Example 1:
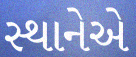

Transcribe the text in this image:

સ્થાનેએ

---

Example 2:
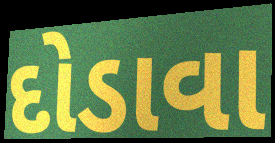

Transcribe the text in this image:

દોડાવા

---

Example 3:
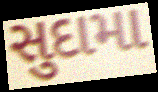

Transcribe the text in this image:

સુદામા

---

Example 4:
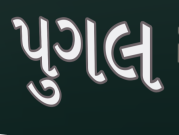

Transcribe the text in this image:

પુગલ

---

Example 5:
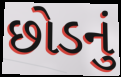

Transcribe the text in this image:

છોડનું